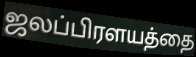
ஜலப்பிரளயத்தை